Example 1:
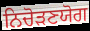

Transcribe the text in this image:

ਨਿਚੋੜਣਯੋਗ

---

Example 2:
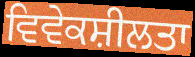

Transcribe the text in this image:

ਵਿਵੇਕਸ਼ੀਲਤਾ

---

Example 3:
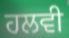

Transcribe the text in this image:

ਹਲਵੀ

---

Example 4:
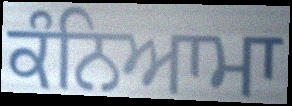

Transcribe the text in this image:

ਕੰਨਿਆਮਾ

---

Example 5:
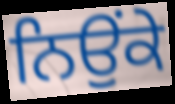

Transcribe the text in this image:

ਨਿਉਂਕੇ